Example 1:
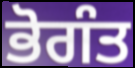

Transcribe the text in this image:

ਭੋਗੰਤ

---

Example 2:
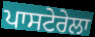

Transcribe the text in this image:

ਪਾਸਟੇਰੇਲਾ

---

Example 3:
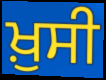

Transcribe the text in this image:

ਖ਼ੁਸੀ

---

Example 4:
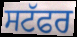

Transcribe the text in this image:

ਸਟੱਫਰ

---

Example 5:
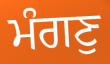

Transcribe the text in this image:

ਮੰਗਣੁ